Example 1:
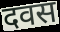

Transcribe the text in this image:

दवस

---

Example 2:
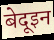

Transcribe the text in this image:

बेदूइन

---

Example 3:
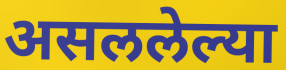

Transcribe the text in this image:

असललेल्या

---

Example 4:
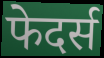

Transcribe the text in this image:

फेदर्स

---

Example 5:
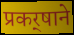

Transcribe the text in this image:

प्रकर्षाने